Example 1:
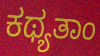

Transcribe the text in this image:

ಕಥ್ಯತಾಂ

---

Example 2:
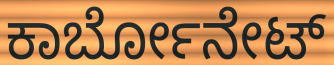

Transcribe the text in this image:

ಕಾರ್ಬೋನೇಟ್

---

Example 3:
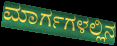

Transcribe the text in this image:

ಮಾರ್ಗಗಳಲ್ಲಿನ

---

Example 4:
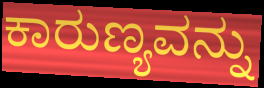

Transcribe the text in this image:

ಕಾರುಣ್ಯವನ್ನು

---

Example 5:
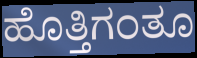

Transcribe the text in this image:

ಹೊತ್ತಿಗಂತೂ